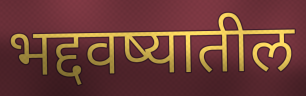
भद्दवष्यातील